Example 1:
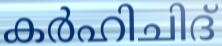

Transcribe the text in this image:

കർഹിചിദ്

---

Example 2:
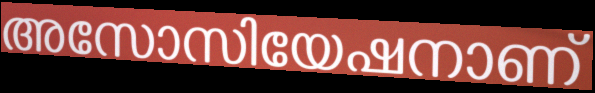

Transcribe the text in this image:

അസോസിയേഷനാണ്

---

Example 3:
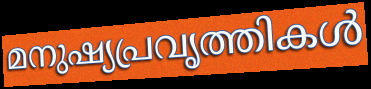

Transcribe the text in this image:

മനുഷ്യപ്രവൃത്തികൾ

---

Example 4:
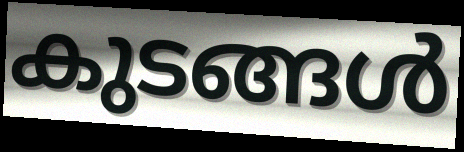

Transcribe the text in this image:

കുടങ്ങൾ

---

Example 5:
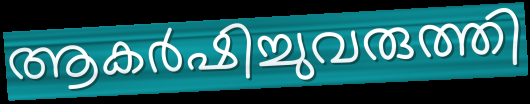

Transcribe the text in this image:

ആകർഷിച്ചുവരുത്തി